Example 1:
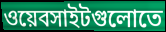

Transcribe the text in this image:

ওয়েবসাইটগুলোতে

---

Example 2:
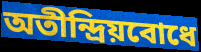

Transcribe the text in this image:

অতীন্দ্রিয়বোধে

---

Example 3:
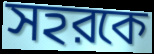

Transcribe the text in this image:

সহরকে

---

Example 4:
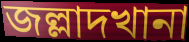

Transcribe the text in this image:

জল্লাদখানা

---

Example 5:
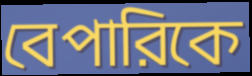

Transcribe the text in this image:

বেপারিকে